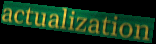
actualization